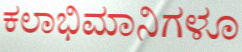
ಕಲಾಭಿಮಾನಿಗಳೂ